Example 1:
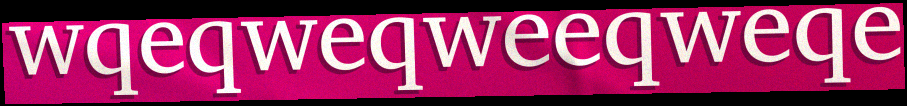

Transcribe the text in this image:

wqeqweqweeqweqe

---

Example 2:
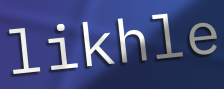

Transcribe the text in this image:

likhle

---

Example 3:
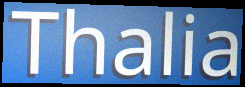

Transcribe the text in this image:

Thalia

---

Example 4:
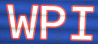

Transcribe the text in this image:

WPI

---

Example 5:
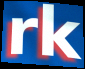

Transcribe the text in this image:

rk